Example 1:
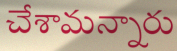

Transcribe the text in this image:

చేశామన్నారు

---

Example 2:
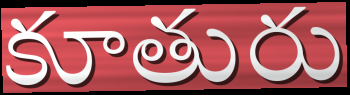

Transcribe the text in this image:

కూతురు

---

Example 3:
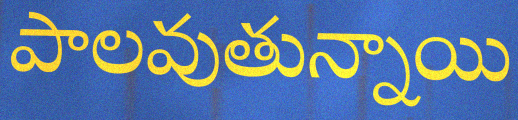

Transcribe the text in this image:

పాలవుతున్నాయి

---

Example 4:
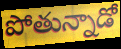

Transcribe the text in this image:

పోతున్నాడో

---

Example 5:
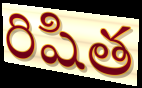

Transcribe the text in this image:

రిషిత